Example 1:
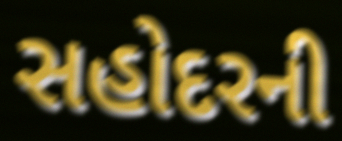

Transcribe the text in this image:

સહોદરની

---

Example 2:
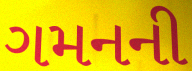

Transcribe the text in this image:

ગમનની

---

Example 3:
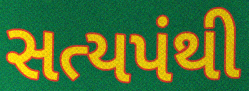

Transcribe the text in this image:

સત્યપંથી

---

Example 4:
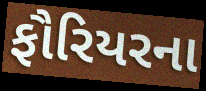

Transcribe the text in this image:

ફૌરિયરના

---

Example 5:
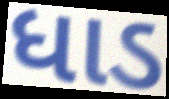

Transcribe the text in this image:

ધાડ